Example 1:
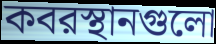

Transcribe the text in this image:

কবরস্থানগুলো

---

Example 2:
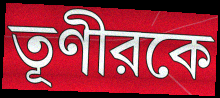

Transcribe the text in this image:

তূণীরকে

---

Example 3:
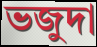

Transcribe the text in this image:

ভজুদা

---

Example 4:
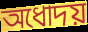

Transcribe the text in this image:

অধোদয়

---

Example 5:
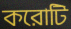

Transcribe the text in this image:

করোটি